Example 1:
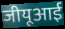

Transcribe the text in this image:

जीयूआई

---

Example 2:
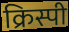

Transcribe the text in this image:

क्रिस्पी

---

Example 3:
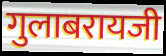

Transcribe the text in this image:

गुलाबरायजी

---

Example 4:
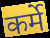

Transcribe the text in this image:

कर्मे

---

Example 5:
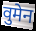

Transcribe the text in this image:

वुमेन